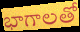
భాగాలతో